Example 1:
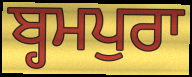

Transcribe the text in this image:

ਬ੍ਹਮਪੁਰਾ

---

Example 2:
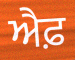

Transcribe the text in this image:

ਐਫ਼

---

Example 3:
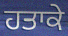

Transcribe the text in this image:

ਹਤਾਕੇ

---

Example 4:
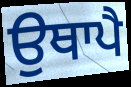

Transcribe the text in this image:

ਉਥਾਪੈ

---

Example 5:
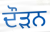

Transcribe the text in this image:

ਦੌਡ਼ਨ